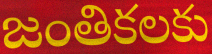
జంతికలకు